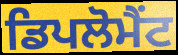
ਡਿਪਲੋਮੈਂਟ